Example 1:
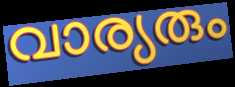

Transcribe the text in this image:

വാര്യരും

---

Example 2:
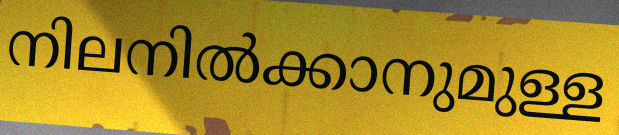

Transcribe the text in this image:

നിലനിൽക്കാനുമുള്ള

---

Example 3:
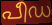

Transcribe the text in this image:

പീഡ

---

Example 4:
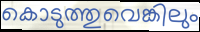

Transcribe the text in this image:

കൊടുത്തുവെങ്കിലും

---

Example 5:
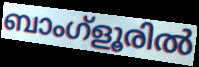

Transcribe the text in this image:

ബാംഗ്ളൂരിൽ